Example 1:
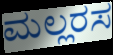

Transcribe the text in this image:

ಮಲ್ಲರಸ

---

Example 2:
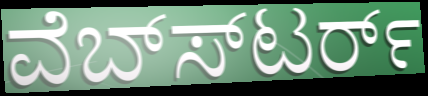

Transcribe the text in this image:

ವೆಬ್ಸ್‍ಟರ್ರ್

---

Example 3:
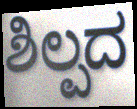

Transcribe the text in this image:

ಶಿಲ್ಪದ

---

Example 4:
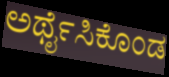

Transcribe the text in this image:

ಅರ್ಥೈಸಿಕೊಂಡ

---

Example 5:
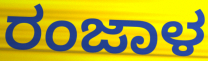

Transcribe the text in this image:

ರಂಜಾಳ